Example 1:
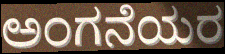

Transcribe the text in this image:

ಅಂಗನೆಯರ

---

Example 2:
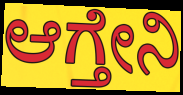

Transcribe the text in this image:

ಆಗ್ತೇನಿ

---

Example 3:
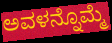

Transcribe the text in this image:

ಅವಳನ್ನೊಮ್ಮೆ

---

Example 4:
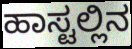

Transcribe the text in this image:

ಹಾಸ್ಟಲ್ಲಿನ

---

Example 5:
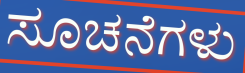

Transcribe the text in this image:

ಸೂಚನೆಗಳು